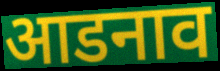
आडनाव